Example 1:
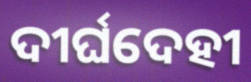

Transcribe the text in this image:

ଦୀର୍ଘଦେହୀ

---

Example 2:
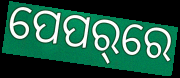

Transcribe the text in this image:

ପେପର୍‌ରେ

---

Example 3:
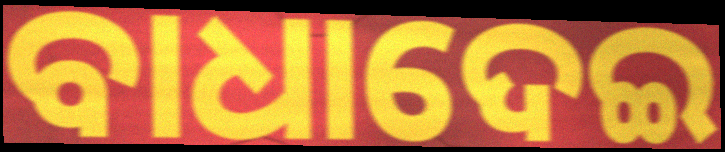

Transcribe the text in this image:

ବାଧାଦେଇ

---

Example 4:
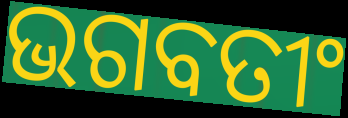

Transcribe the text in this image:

ଭଗବତୀଂ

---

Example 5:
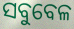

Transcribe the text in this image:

ସବୁବେଳ